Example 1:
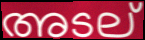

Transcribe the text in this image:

അടല്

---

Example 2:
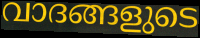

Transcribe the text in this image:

വാദങ്ങളുടെ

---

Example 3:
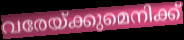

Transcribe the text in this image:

വരേയ്ക്കുമെനിക്ക്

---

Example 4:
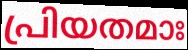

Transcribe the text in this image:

പ്രിയതമാഃ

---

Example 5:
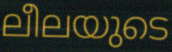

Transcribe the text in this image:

ലീലയുടെ